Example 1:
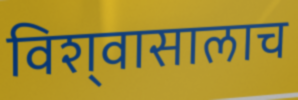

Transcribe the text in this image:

विश्वासालाच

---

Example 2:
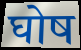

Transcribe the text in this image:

घोष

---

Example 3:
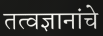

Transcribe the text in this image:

तत्वज्ञानांचे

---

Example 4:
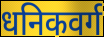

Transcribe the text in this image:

धनिकवर्ग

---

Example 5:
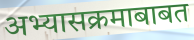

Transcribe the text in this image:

अभ्यासक्रमाबाबत